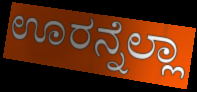
ಊರನ್ನೆಲ್ಲಾ